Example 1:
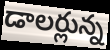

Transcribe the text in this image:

డాలర్లున్న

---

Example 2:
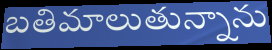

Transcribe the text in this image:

బతిమాలుతున్నాను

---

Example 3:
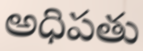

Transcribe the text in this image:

అధిపతు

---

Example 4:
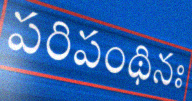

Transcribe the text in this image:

పరిపంథినః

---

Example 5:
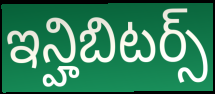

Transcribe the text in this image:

ఇన్హిబిటర్స్